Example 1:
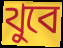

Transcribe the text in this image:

থুবে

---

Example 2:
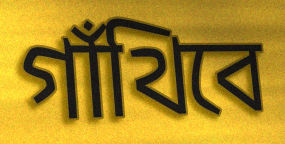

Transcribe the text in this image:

গাঁথিবে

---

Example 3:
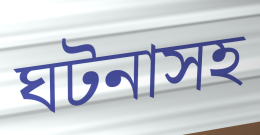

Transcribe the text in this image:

ঘটনাসহ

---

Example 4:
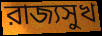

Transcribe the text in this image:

রাজ্যসুখ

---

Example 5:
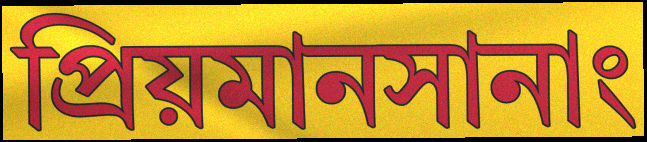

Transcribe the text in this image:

প্রিয়মানসানাং